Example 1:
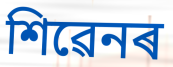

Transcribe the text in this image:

শিৱেনৰ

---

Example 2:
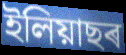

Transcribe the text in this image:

ইলিয়াছৰ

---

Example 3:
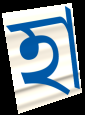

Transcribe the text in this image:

হা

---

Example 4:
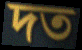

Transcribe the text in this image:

দত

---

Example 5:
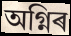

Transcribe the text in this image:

অগ্নিৰ